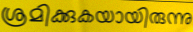
ശ്രമിക്കുകയായിരുന്നു